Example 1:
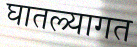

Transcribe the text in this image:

घातल्यागत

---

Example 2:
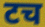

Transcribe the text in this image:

टच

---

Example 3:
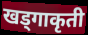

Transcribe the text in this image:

खड्गाकृती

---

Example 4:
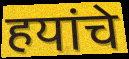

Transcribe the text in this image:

हयांचे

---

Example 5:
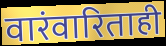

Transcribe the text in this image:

वारंवारिताही